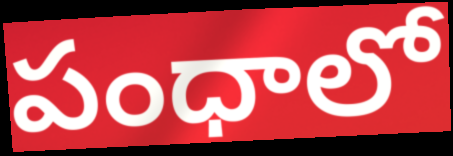
పంధాలో